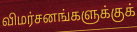
விமர்சனங்களுக்குக்